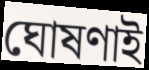
ঘোষণাই